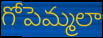
గోపెమ్మలా